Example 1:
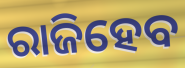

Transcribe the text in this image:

ରାଜିହେବ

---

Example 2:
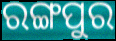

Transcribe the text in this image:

ରଙ୍ଗପୁର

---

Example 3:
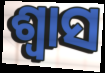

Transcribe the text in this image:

ଶ୍ୱାସ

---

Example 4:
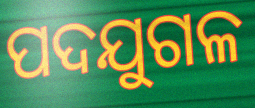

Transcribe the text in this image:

ପଦଯୁଗଳ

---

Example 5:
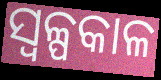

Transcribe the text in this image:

ସ୍ୱଳ୍ପକାଳ